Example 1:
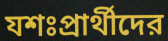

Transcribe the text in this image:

যশঃপ্রার্থীদের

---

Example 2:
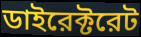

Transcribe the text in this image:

ডাইরেক্টরেট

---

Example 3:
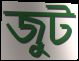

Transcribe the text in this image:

জুট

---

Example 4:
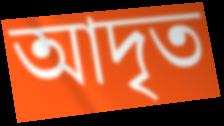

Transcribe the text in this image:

আদৃত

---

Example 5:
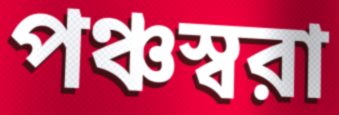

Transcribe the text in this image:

পঞ্চস্বরা